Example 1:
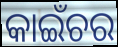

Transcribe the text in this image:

କାଇଁଚର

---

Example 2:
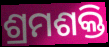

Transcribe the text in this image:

ଶ୍ରମଶକ୍ତି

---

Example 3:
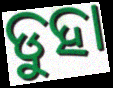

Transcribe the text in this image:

ଡୁହା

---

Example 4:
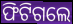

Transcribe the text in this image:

ଫିଟିଗଲେ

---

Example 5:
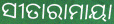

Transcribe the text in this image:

ସୀତାରାମାୟା